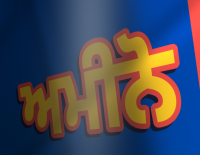
ਅਮੀਨੋ